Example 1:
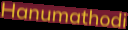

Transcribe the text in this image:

Hanumathodi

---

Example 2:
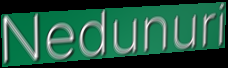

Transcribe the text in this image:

Nedunuri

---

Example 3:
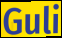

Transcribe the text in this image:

Guli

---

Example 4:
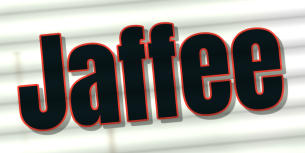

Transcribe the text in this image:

Jaffee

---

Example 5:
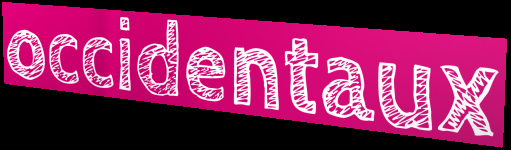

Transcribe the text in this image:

occidentaux